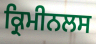
ਕ੍ਰਿਮੀਨਲਸ